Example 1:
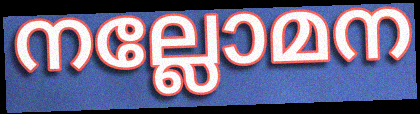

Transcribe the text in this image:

നല്ലോമന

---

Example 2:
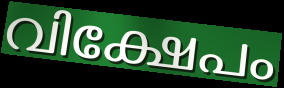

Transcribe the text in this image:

വിക്ഷേപം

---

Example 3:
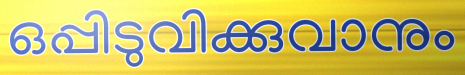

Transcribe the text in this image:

ഒപ്പിടുവിക്കുവാനും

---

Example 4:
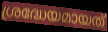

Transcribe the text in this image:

ശ്രദ്ധേയമായത്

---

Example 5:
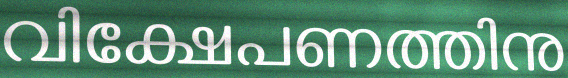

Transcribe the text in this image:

വിക്ഷേപണത്തിനു